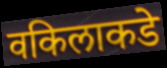
वकिलाकडे